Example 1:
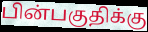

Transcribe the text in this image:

பின்பகுதிக்கு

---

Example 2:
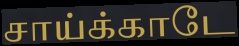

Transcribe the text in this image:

சாய்க்காடே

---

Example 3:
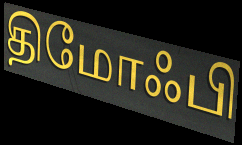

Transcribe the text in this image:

திமோஃபி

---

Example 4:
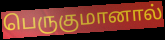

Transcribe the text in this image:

பெருகுமானால்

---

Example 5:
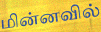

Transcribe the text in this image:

மின்னவில்